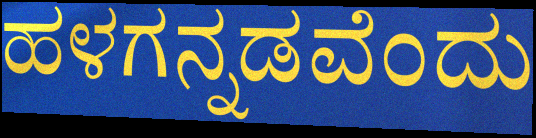
ಹಳಗನ್ನಡವೆಂದು